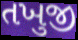
તખુજી